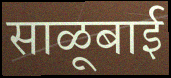
साळूबाई